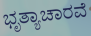
ಭೃತ್ಯಾಚಾರವೆ